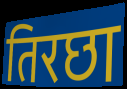
तिरछा